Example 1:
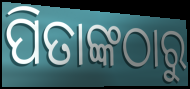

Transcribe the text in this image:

ପିତାଙ୍କଠାରୁ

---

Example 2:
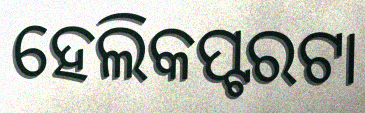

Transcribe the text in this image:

ହେଲିକପ୍ଟରଟା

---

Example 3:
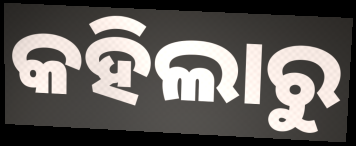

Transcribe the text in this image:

କହିଲାରୁ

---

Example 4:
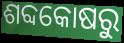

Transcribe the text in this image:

ଶବ୍ଦକୋଷରୁ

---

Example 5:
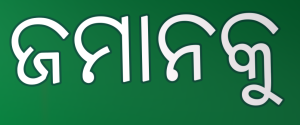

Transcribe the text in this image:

ଜମାନକୁ